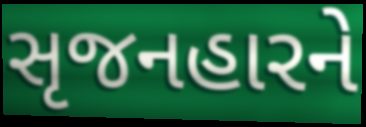
સૃજનહારને